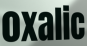
oxalic